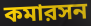
কমারসন